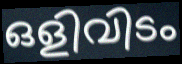
ഒളിവിടം